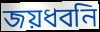
জয়ধবনি